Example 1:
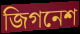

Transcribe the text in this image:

জিগনেশ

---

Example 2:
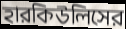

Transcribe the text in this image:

হারকিউলিসের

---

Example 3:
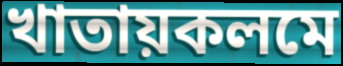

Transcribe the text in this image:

খাতায়কলমে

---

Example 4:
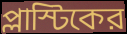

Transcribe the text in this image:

প্লাস্টিকের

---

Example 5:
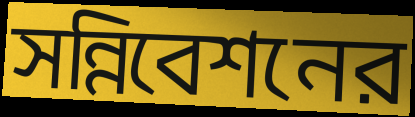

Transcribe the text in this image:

সন্নিবেশনের